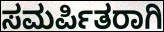
ಸಮರ್ಪಿತರಾಗಿ